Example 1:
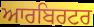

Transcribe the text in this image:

ਆਰਬਿਰਟਰ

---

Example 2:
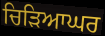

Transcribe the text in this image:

ਚਿੜਿਆਘਰ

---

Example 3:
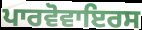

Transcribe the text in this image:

ਪਾਰਵੋਵਾਇਰਸ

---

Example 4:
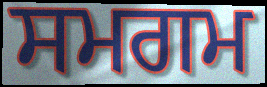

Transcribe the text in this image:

ਸਮਗਮ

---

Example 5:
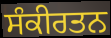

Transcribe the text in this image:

ਸੰਕੀਰਤਨ